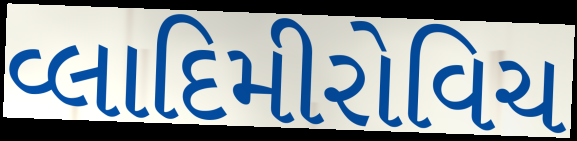
વ્લાદિમીરોવિચ